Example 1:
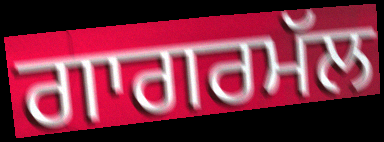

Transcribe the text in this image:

ਗਾਗਰਮੱਲ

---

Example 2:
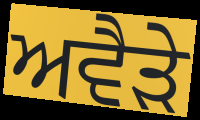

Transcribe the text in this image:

ਅਵੈੜੇ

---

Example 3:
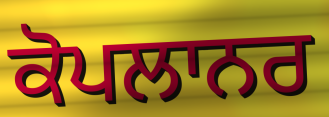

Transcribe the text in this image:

ਕੋਪਲਾਨਰ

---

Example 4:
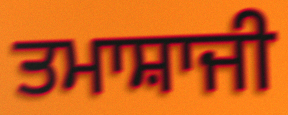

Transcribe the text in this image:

ਤਮਾਸ਼ਾਜੀ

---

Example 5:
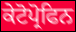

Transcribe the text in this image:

ਕੇਟੋਪ੍ਰੋਫਿਨ